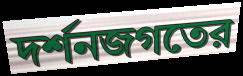
দর্শনজগতের